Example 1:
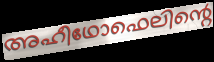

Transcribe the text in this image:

അഹീഥോഫെലിന്റെ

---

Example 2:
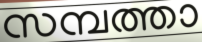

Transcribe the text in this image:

സമ്പത്താ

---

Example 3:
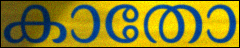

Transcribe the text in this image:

കാതോ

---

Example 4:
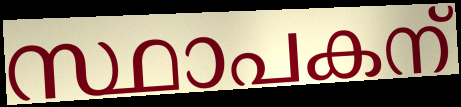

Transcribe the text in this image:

സ്ഥാപകന്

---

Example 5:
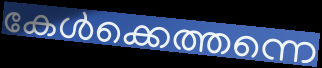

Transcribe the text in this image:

കേൾക്കെത്തന്നെ